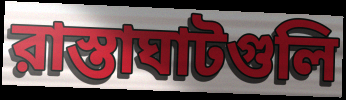
রাস্তাঘাটগুলি